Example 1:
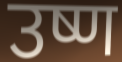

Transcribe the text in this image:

उष्ण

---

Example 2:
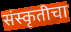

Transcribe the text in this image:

संस्कृतीचा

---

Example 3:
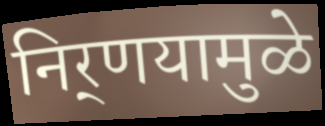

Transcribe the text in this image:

निर्णयामुळे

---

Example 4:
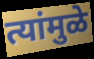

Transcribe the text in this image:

त्यांमुळे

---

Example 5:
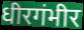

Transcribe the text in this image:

धीरगंभीर